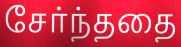
சேர்ந்ததை